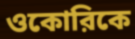
ওকোরিকে